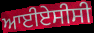
ਆਈਏਸੀਸੀ